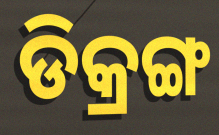
ଡିକ୍ରଙ୍ଗ